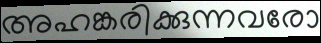
അഹങ്കരിക്കുന്നവരോ